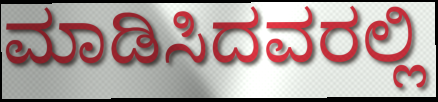
ಮಾಡಿಸಿದವರಲ್ಲಿ